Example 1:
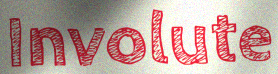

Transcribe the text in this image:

Involute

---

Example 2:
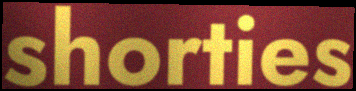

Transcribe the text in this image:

shorties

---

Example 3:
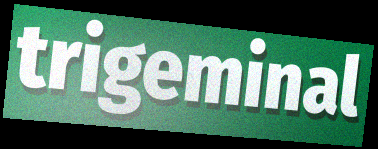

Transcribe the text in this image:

trigeminal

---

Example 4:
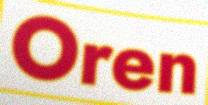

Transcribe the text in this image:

Oren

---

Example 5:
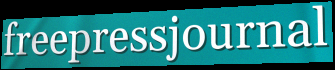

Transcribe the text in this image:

freepressjournal